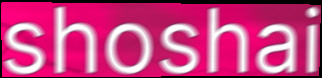
shoshai